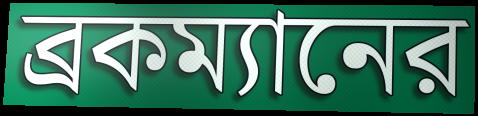
ব্রকম্যানের